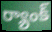
ర్యాంక్